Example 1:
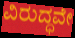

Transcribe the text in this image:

ವಿರುದ್ಧವೇ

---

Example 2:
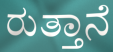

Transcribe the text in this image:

ರುತ್ತಾನೆ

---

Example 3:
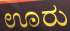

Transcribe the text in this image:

ಊರು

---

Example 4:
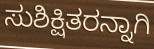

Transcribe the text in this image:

ಸುಶಿಕ್ಷಿತರನ್ನಾಗಿ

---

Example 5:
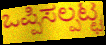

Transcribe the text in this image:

ಒಪ್ಪಿಸಲ್ಪಟ್ಟ